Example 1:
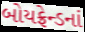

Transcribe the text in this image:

બોયફ્રેન્ડનાં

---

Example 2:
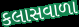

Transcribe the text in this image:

કલાસવાળા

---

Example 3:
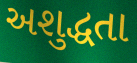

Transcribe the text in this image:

અશુદ્ધતા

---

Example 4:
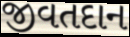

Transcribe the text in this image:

જીવતદાન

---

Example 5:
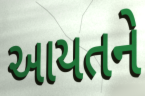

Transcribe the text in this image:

આયતને